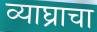
व्याघ्राचा